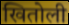
खितोली